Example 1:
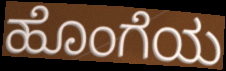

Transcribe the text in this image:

ಹೊಂಗೆಯ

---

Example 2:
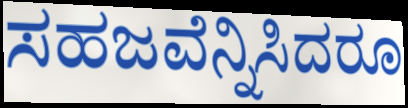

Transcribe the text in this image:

ಸಹಜವೆನ್ನಿಸಿದರೂ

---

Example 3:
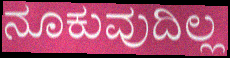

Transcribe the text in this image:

ನೂಕುವುದಿಲ್ಲ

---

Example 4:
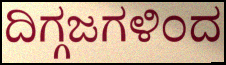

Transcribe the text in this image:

ದಿಗ್ಗಜಗಳಿಂದ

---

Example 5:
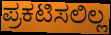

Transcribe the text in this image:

ಪ್ರಕಟಿಸಲಿಲ್ಲ